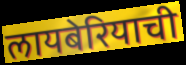
लायबेरियाची